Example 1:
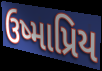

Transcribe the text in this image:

ઉષ્માપ્રિય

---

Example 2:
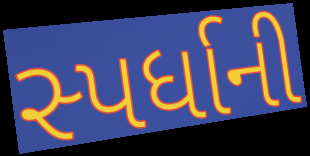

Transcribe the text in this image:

સ્પર્ધાની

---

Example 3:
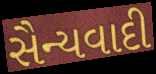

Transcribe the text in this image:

સૈન્યવાદી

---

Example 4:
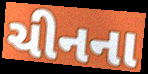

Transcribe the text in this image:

ચીનના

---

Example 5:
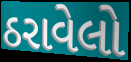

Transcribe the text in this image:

ઠરાવેલો